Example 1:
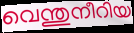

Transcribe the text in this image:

വെന്തുനീറിയ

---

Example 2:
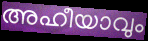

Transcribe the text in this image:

അഹീയാവും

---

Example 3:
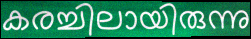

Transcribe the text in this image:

കരച്ചിലായിരുന്നു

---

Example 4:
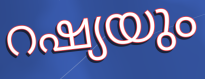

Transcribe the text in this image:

റഷ്യയും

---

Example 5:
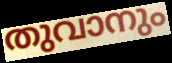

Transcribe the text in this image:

തുവാനും